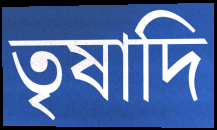
তৃষাদি